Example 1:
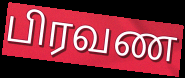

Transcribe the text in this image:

பிரவண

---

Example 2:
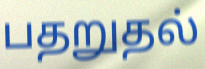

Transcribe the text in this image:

பதறுதல்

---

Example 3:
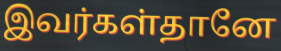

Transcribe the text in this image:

இவர்கள்தானே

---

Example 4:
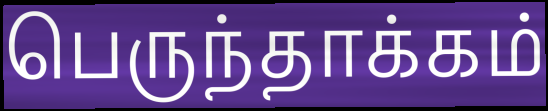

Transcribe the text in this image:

பெருந்தாக்கம்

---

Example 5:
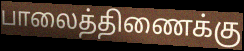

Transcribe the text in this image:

பாலைத்திணைக்கு